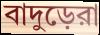
বাদুড়েরা